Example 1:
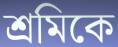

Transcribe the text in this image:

শ্রমিকে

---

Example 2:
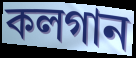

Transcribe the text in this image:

কলগান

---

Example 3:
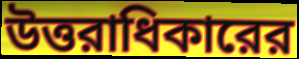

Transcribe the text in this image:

উত্তরাধিকারের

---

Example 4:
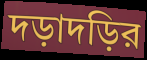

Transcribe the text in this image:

দড়াদড়ির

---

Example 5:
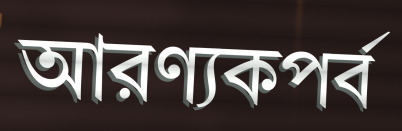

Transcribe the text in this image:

আরণ্যকপর্ব